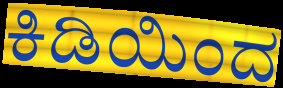
ಕಿಡಿಯಿಂದ